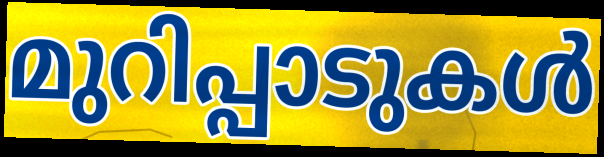
മുറിപ്പാടുകൾ